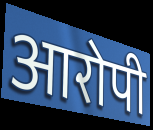
आरोपी